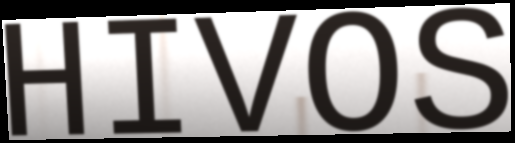
HIVOS